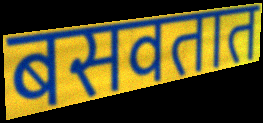
बसवतात